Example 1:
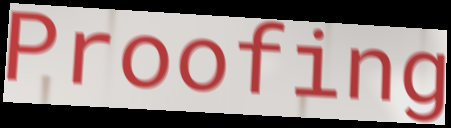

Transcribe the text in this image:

Proofing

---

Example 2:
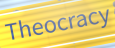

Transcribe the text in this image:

Theocracy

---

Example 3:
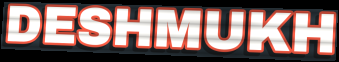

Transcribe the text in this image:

DESHMUKH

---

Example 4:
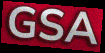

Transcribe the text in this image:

GSA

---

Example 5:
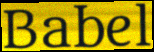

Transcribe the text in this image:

Babel